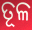
ତୂଳ